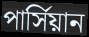
পার্সিয়ান